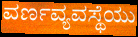
ವರ್ಣವ್ಯವಸ್ಥೆಯು